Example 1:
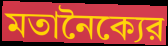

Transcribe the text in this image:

মতানৈক্যের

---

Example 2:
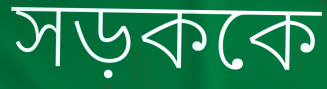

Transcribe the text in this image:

সড়ককে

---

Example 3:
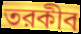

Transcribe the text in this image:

তরকীব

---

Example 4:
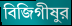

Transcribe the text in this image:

বিজিগীষুর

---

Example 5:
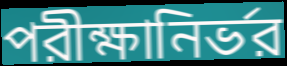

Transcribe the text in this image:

পরীক্ষানির্ভর